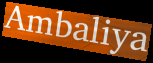
Ambaliya